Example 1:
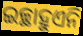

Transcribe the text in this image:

ଇଚ୍ଛାହୁଏନି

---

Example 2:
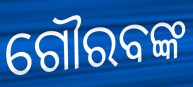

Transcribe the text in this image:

ଗୌରବଙ୍କ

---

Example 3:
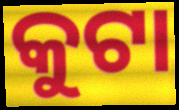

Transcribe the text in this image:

କୁଟା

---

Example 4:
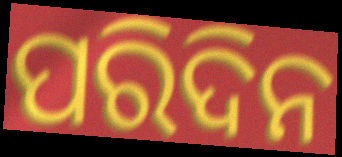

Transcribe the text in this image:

ପରିଦିନ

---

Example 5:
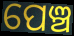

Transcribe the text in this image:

ପେଞ୍ଚ